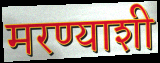
मरण्याशी